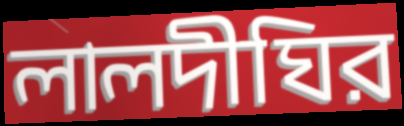
লালদীঘির